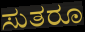
ಸುತರೂ